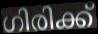
ഗിരിക്ക്